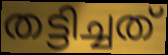
തട്ടിച്ചത്